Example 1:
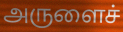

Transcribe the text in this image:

அருளைச்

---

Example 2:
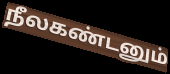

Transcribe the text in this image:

நீலகண்டனும்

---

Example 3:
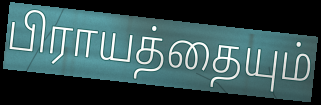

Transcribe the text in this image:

பிராயத்தையும்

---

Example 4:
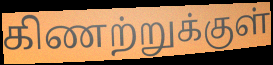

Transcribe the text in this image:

கிணற்றுக்குள்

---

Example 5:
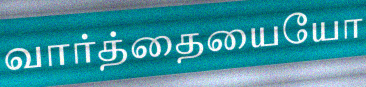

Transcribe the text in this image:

வார்த்தையையோ